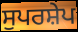
ਸੁਪਰਸ਼ੇਪ